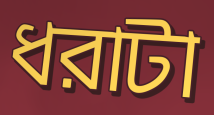
ধরাটা